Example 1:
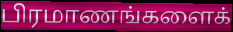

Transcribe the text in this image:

பிரமாணங்களைக்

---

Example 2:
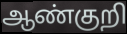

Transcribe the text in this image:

ஆண்குறி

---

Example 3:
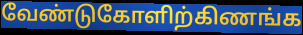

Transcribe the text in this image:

வேண்டுகோளிற்கிணங்க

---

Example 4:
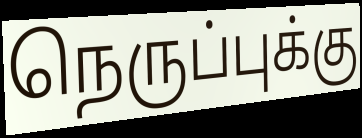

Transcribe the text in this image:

நெருப்புக்கு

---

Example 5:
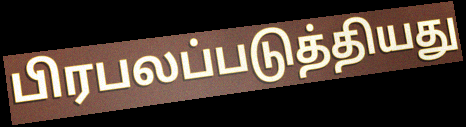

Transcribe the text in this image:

பிரபலப்படுத்தியது